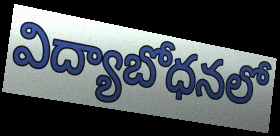
విద్యాబోధనలో